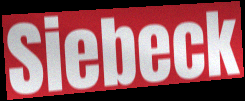
Siebeck